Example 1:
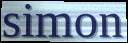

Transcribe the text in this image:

simon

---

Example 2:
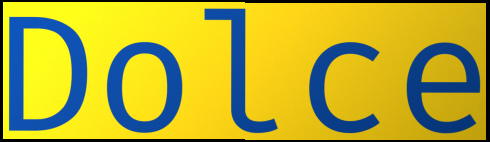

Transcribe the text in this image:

Dolce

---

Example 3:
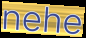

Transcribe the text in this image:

nehe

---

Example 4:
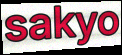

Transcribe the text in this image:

sakyo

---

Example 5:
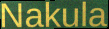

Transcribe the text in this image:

Nakula